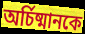
অর্চিষ্মানকে